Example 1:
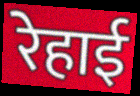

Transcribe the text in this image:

रेहाई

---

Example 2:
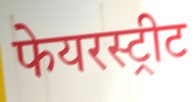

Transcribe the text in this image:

फेयरस्ट्रीट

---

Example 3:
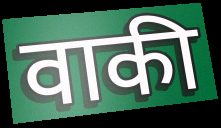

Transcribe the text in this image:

वाकी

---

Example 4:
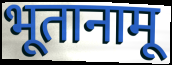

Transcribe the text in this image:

भूतानामू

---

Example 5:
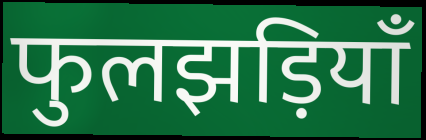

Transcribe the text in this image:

फुलझड़ियाँ